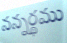
నన్నర్థము